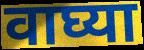
वाघ्या